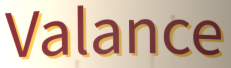
Valance